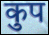
कुप